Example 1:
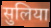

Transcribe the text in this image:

सुलिया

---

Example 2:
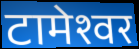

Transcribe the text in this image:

टामेश्वर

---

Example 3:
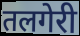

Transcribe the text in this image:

तलगेरी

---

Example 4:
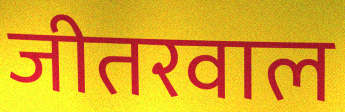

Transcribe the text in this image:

जीतरवाल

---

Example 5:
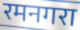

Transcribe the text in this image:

रमनगरा